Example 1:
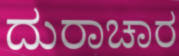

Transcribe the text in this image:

ದುರಾಚಾರ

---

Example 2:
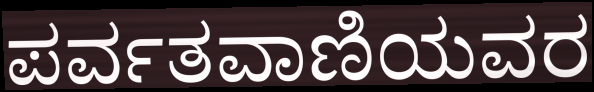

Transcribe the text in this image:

ಪರ್ವತವಾಣಿಯವರ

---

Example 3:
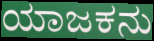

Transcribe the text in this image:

ಯಾಜಕನು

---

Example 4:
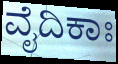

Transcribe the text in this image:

ವೈದಿಕಾಃ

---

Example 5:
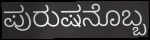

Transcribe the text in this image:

ಪುರುಷನೊಬ್ಬ